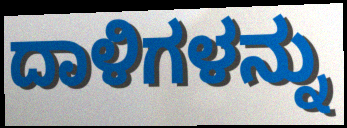
ದಾಳಿಗಳನ್ನು